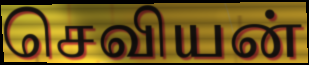
செவியன்